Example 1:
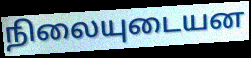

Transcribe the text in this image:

நிலையுடையன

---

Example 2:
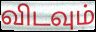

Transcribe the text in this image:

விடவும்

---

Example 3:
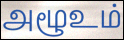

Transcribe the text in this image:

அழூஉம்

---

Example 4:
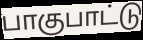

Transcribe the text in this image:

பாகுபாட்டு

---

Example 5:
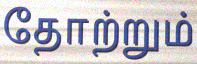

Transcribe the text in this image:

தோற்றும்